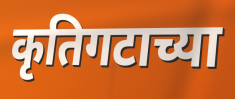
कृतिगटाच्या